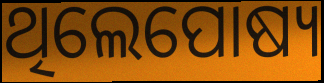
ଥିଲେପୋଷ୍ୟ